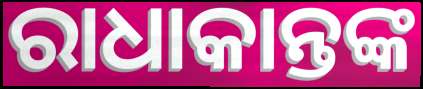
ରାଧାକାନ୍ତଙ୍କ